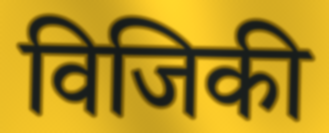
विजिकी